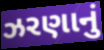
ઝરણાનું